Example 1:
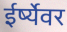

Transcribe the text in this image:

ईर्ष्येवर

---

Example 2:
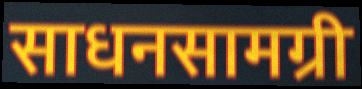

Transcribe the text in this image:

साधनसामग्री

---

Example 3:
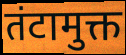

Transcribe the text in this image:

तंटामुक्त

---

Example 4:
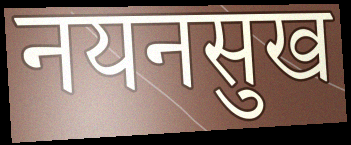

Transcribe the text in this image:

नयनसुख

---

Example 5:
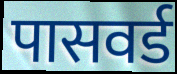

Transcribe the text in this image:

पासवर्ड